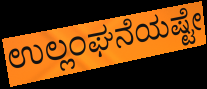
ಉಲ್ಲಂಘನೆಯಷ್ಟೇ